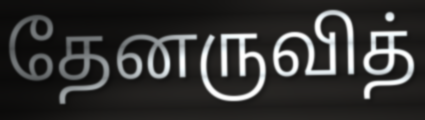
தேனருவித்